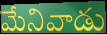
మేనివాడు